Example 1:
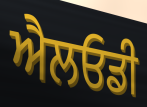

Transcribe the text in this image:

ਐਲਓਡੀ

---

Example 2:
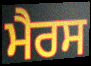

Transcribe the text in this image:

ਮੈਰਸ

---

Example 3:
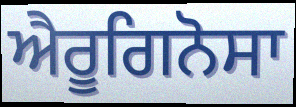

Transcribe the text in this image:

ਐਰੂਗਿਨੋਸਾ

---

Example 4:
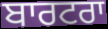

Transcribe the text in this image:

ਬਾਰਟਰਾ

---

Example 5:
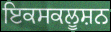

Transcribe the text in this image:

ਇਕਸਕਲੂਸ਼ਨ